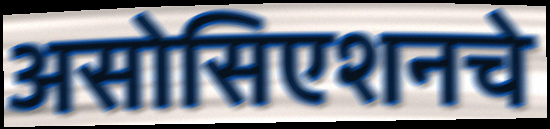
असोसिएशनचे